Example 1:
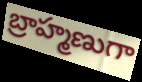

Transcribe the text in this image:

బ్రాహ్మణుగా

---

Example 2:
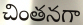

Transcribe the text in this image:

చింతనగా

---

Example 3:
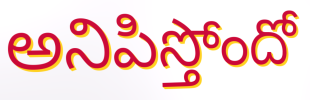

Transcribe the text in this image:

అనిపిస్తోందో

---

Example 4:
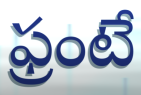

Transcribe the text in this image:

ఫ్రంటే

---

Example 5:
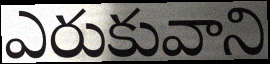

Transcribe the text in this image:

ఎరుకువాని